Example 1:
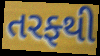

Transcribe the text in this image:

તરફ્થી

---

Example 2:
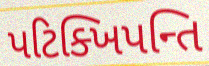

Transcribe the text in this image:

પટિક્ખિપન્તિ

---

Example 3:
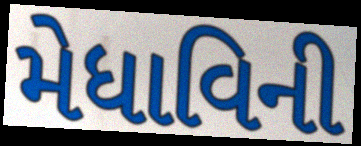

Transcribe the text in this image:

મેધાવિની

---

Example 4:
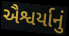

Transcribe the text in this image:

ઐશ્વર્યાનું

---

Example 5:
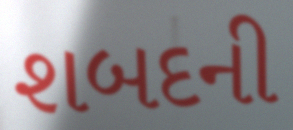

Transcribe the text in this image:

શબદની